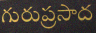
గురుప్రసాద